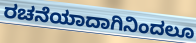
ರಚನೆಯಾದಾಗಿನಿಂದಲೂ